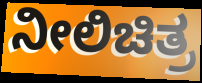
ನೀಲಿಚಿತ್ರ